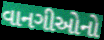
વાનગીઓનો